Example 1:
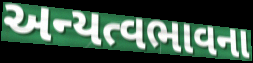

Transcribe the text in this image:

અન્યત્વભાવના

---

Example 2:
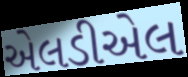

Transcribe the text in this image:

એલડીએલ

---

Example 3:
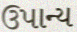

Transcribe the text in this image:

ઉપાન્ય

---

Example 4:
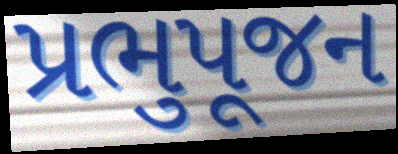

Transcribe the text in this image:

પ્રભુપૂજન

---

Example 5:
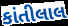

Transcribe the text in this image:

કાંતીલાલ